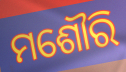
ମଶୌରି